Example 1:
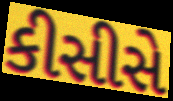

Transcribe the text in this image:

કીસીસે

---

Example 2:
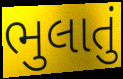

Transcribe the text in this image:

ભુલાતું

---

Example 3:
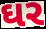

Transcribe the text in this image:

ઘર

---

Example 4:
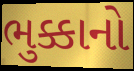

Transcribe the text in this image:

ભુક્કાનો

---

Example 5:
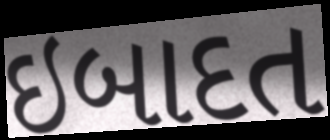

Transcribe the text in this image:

ઇબાદત